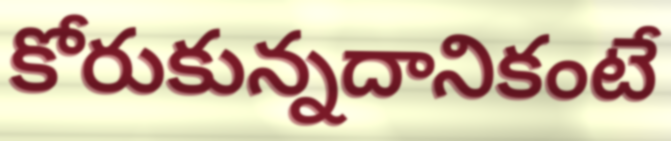
కోరుకున్నదానికంటే